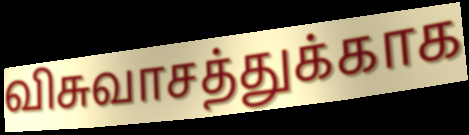
விசுவாசத்துக்காக